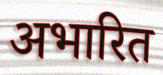
अभारित